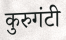
कुरुगंटी